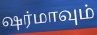
ஷர்மாவும்